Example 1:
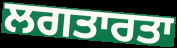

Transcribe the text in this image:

ਲਗਤਾਰਤਾ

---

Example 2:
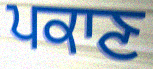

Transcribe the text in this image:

ਪਕਾਣ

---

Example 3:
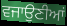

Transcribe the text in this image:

ਵਜਾਉਣੀਆਂ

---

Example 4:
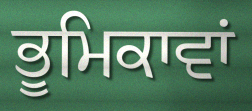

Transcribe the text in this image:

ਭੂਮਿਕਾਵਾਂ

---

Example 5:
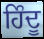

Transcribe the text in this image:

ਹਿੰਦੂ